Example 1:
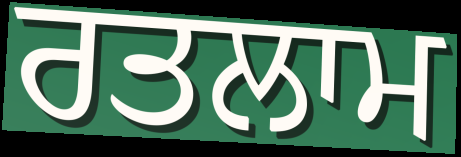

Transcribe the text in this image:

ਰਤਲਾਮ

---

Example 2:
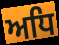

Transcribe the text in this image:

ਅਧਿ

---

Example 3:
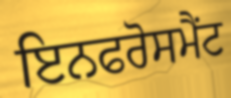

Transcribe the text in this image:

ਇਨਫਰੋਸਮੈਂਟ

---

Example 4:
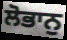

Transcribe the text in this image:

ਲੋਭਾਨੁ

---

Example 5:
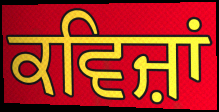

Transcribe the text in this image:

ਕਵਿਜ਼ਾਂ